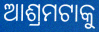
ଆଶ୍ରମଟାକୁ